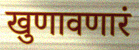
खुणावणारं